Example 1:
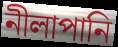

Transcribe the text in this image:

নীলাপানি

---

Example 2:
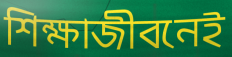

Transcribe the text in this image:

শিক্ষাজীবনেই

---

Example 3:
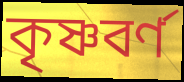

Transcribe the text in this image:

কৃষ্ণবর্ণ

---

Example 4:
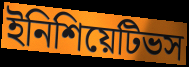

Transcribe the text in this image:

ইনিশিয়েটিভস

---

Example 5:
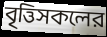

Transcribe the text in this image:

বৃত্তিসকলের